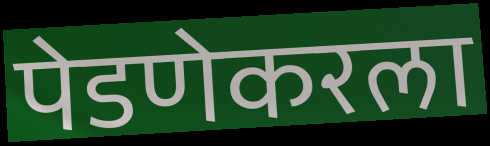
पेडणेकरला